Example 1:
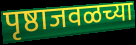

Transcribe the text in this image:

पृष्ठाजवळच्या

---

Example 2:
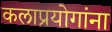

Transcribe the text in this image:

कलाप्रयोगांना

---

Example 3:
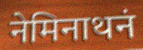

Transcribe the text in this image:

नेमिनाथनं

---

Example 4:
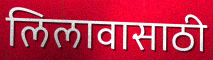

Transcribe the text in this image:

लिलावासाठी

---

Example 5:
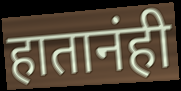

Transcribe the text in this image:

हातानंही